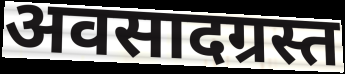
अवसादग्रस्त